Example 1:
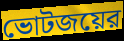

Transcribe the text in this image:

ভোটজয়ের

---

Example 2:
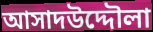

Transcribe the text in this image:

আসাদউদ্দৌলা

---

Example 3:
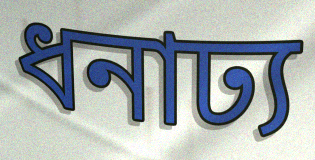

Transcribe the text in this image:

ধনাঢ্য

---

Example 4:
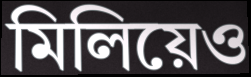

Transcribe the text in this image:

মিলিয়েও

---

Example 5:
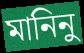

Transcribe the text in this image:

মানিনু